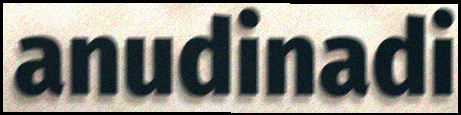
anudinadi